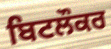
ਬਿਟਲੌਕਰ